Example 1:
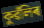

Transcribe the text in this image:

কুৱঁলিৰ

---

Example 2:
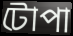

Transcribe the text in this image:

টোপা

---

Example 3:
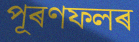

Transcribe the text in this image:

পূৰণফলৰ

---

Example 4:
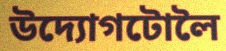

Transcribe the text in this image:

উদ্যোগটোলৈ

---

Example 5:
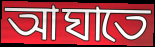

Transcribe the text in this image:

আঘাতে